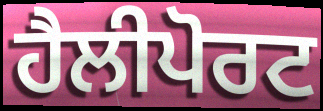
ਹੈਲੀਪੋਰਟ